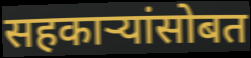
सहकाऱ्यांसोबत